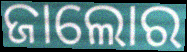
ଜାଲୋର